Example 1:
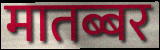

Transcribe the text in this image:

मातब्बर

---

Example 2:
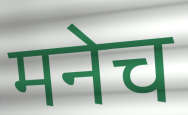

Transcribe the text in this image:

मनेच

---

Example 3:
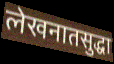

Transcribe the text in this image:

लेखनातसुद्धा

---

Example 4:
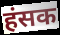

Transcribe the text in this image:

हंसक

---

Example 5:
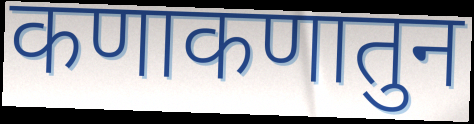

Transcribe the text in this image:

कणाकणातुन